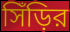
সিঁড়ির